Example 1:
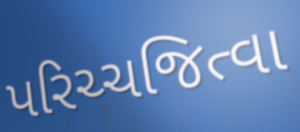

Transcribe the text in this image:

પરિચ્ચજિત્વા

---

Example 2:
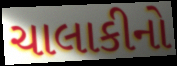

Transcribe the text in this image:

ચાલાકીનો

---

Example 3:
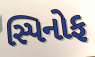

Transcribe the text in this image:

સ્પિનોફ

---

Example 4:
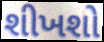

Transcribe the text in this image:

શીખશો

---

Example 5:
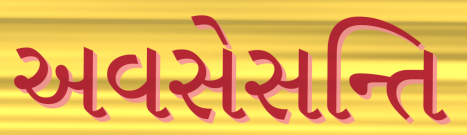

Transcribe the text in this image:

અવસેસન્તિ